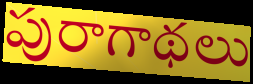
పురాగాథలు